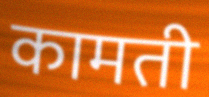
कामती